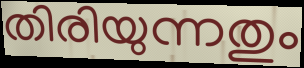
തിരിയുന്നതും